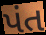
પંત